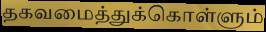
தகவமைத்துக்கொள்ளும்